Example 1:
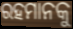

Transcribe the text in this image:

ରହମାନକୁ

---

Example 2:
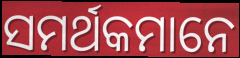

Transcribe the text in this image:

ସମର୍ଥକମାନେ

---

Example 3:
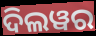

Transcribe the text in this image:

ଦିଲୱର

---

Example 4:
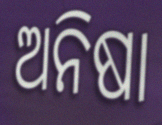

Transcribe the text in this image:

ଅନିଷା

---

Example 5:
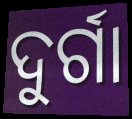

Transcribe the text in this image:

ଦୁର୍ଗା